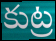
కుట్ర